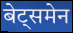
बेट्समेन